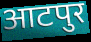
आटपुर